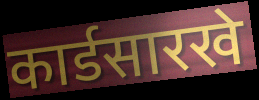
कार्डसारखे